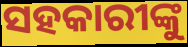
ସହକାରୀଙ୍କୁ